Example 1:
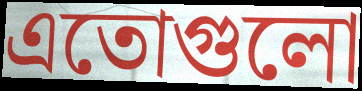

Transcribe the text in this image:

এতোগুলো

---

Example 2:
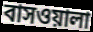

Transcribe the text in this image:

বাসওয়ালা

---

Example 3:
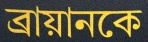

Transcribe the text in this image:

ব্রায়ানকে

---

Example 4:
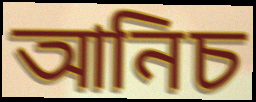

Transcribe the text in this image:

আনিচ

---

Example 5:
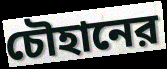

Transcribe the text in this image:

চৌহানের